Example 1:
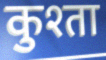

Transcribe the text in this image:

कुश्ता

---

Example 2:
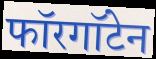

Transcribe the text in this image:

फॉरगॉटेन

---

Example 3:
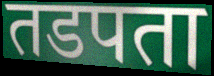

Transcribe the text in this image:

तडपता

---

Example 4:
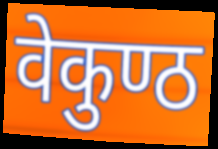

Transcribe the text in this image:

वेकुण्ठ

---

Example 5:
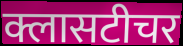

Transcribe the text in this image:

क्लासटीचर